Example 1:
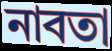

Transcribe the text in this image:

নাবতা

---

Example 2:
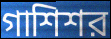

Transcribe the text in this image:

গাশিশর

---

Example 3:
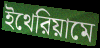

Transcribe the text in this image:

ইথেরিয়ামে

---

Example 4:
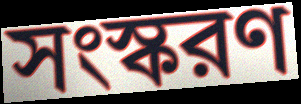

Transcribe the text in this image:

সংস্করণ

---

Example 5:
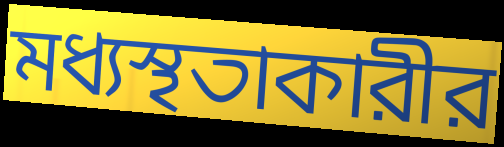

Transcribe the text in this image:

মধ্যস্থতাকারীর